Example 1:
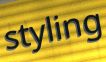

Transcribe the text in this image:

styling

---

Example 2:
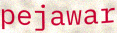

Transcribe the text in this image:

pejawar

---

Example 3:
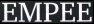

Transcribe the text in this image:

EMPEE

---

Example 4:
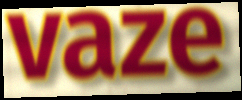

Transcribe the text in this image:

vaze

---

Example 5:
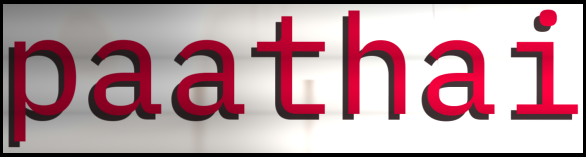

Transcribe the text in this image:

paathai